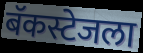
बॅकस्टेजला